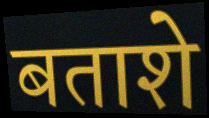
बताशे